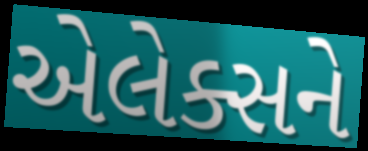
એલેક્સને